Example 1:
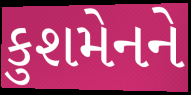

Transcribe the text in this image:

કુશમેનને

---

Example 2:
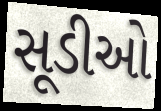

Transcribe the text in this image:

સૂડીઓ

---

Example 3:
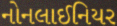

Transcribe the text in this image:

નોનલાઈનિયર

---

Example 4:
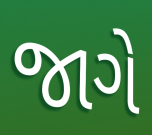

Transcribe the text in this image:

જાગે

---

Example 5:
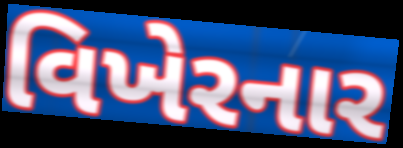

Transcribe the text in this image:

વિખેરનાર